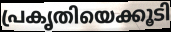
പ്രകൃതിയെക്കൂടി